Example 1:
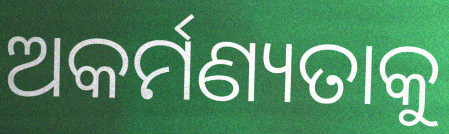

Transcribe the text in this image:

ଅକର୍ମଣ୍ୟତାକୁ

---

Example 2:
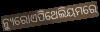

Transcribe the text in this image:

ନ୍ୟୁରୋଏପିଥେଲିୟମରେ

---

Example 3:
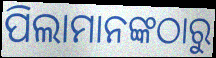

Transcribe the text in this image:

ପିଲାମାନଙ୍କଠାରୁ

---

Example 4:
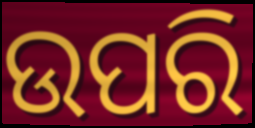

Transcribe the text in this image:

ଉପରି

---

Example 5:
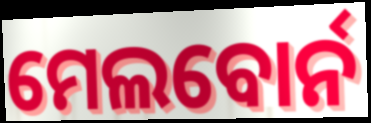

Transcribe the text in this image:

ମେଲବୋର୍ନ